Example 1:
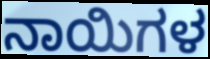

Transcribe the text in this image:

ನಾಯಿಗಳ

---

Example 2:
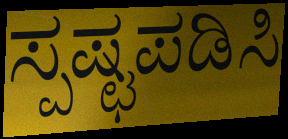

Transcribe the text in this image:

ಸ್ಪಷ್ಟಪಡಿಸಿ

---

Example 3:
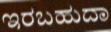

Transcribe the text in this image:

ಇರಬಹುದಾ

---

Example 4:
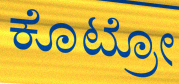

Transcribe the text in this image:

ಕೊಟ್ರೋ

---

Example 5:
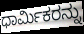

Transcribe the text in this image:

ಧಾರ್ಮಿಕರನ್ನು